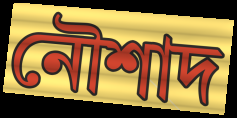
নৌশাদ